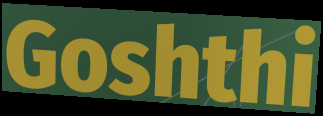
Goshthi